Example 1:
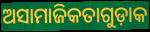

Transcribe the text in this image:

ଅସାମାଜିକତାଗୁଡ଼ାକ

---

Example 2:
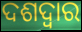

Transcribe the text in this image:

ଦଶଦ୍ୱାର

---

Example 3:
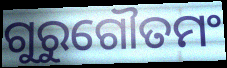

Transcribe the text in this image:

ଗୁରୁଗୌତମଂ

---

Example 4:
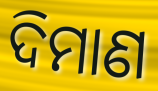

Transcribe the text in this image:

ଦିମାଣ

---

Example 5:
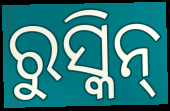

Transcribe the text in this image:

ରୁସ୍କିନ୍